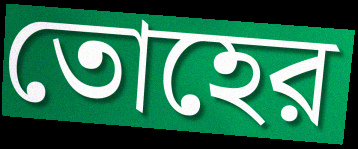
তোহের